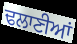
ਢਲਾਣੀਆਂ